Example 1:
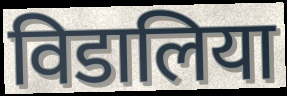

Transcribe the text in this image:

विडालिया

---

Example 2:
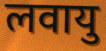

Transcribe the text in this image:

लवायु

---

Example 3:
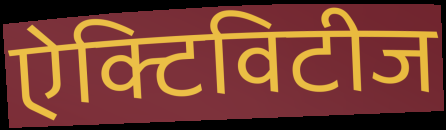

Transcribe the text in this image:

ऐक्टिविटीज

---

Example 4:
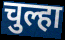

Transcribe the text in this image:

चुल्हा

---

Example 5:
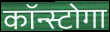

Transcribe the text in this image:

कॉन्स्टोगा